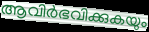
ആവിർഭവിക്കുകയും